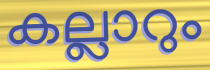
കല്ലാറും